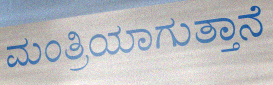
ಮಂತ್ರಿಯಾಗುತ್ತಾನೆ